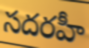
సదరహీ